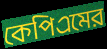
কেপিএমের